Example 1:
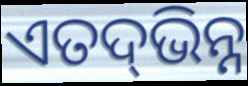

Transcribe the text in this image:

ଏତଦ୍‍ଭିନ୍ନ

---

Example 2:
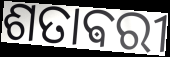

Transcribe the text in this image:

ଶତାଵରୀ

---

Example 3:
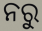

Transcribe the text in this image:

ନରୁ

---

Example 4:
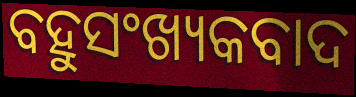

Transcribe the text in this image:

ବହୁସଂଖ୍ୟକବାଦ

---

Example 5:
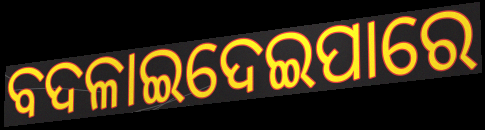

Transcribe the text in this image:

ବଦଳାଇଦେଇପାରେ